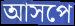
আসপে